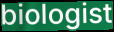
biologist